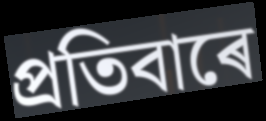
প্ৰতিবাৰে